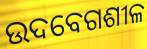
ଉଦବେଗଶୀଳ